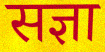
सज्ञा